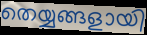
തെയ്യങ്ങളായി